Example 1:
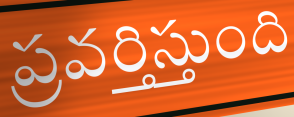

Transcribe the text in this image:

ప్రవర్తిస్తుంది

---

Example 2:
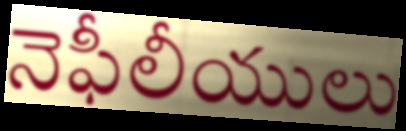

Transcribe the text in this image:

నెఫీలీయులు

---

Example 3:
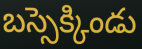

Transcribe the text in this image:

బస్సెక్కిండు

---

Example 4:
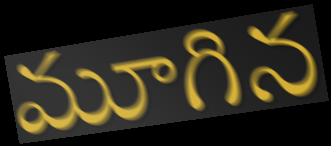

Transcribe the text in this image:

మూగిన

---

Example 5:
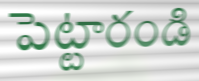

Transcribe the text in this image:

పెట్టారండి